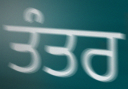
ਤੰਤਰ